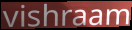
vishraam